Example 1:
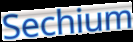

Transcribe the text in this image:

Sechium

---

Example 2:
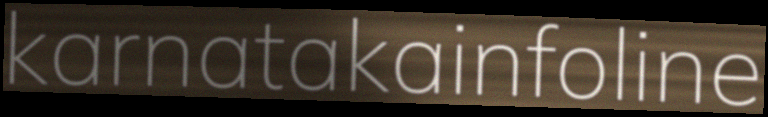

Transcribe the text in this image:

karnatakainfoline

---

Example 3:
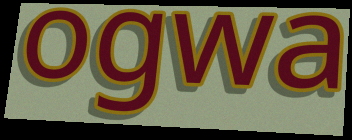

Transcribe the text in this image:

ogwa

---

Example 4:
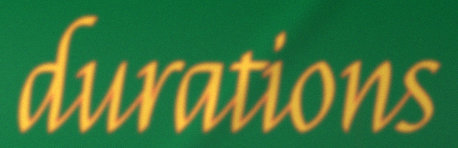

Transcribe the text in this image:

durations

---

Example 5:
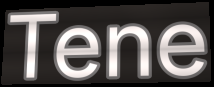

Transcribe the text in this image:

Tene